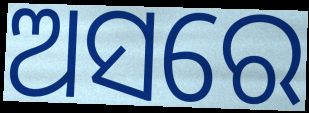
ଅସରେ